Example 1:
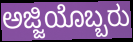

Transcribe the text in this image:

ಅಜ್ಜಿಯೊಬ್ಬರು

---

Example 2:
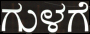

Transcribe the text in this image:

ಗುಳಗೆ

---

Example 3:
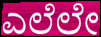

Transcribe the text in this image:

ಎಲೆಲೇ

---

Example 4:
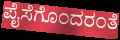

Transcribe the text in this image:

ಪೈಸೆಗೊಂದರಂತೆ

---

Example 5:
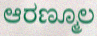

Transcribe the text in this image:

ಆರಣ್ಮೂಲ